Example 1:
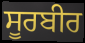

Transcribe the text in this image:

ਸੂਰਬੀਰ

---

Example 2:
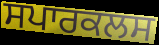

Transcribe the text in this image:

ਸਪਾਰਕਲਸ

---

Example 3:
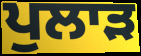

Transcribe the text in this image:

ਪੁਲਾੜ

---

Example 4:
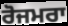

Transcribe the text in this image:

ਰੋਜਮਰਾ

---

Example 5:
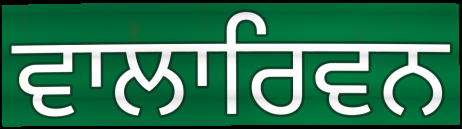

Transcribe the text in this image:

ਵਾਲਾਰਿਵਨ